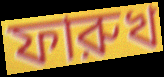
ফারুখ